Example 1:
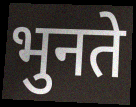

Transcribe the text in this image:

भुनते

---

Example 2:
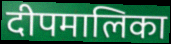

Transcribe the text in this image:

दीपमालिका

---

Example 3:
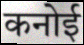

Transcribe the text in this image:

कनोई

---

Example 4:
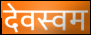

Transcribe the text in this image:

देवस्वम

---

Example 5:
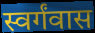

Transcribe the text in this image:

स्वर्गंवास